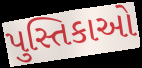
પુસ્તિકાઓ